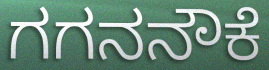
ಗಗನನೌಕೆ